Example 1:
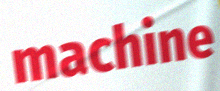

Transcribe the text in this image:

machine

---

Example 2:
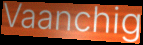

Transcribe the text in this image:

Vaanchig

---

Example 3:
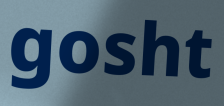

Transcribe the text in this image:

gosht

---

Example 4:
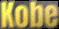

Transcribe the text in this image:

Kobe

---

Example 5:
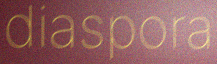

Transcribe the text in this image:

diaspora